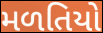
મળતિયો